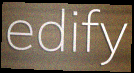
edify